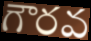
గౌరవ